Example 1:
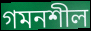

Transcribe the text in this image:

গমনশীল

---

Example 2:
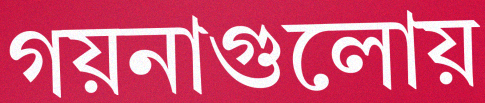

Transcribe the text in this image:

গয়নাগুলোয়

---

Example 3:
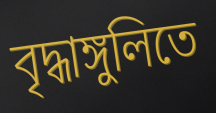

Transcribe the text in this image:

বৃদ্ধাঙ্গুলিতে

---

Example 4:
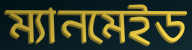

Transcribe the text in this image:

ম্যানমেইড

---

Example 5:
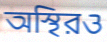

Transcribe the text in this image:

অস্থিরও